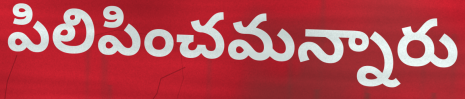
పిలిపించమన్నారు